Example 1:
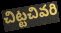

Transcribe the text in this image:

చిట్టచివరి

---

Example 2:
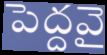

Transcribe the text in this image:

పెద్దవై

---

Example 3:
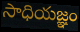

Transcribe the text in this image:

సాధియజ్ఞం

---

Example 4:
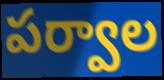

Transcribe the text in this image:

పర్వాల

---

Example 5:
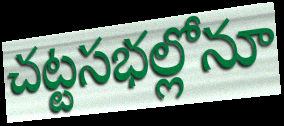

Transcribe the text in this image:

చట్టసభల్లోనూ